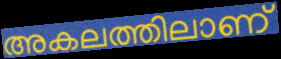
അകലത്തിലാണ്